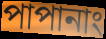
পাপানাং